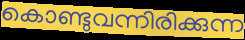
കൊണ്ടുവന്നിരിക്കുന്ന